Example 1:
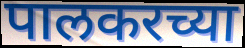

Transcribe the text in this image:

पालकरच्या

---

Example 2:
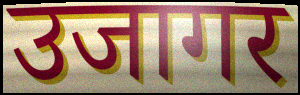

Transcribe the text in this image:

उजागर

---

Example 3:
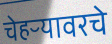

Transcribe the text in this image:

चेहऱ्यावरचे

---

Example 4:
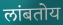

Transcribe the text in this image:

लांबतोय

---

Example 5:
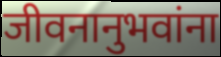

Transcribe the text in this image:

जीवनानुभवांना